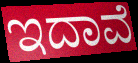
ಇದಾವೆ